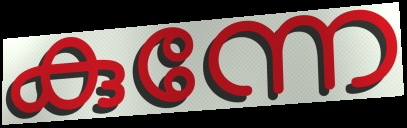
കുന്നേ